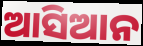
ଆସିଆନ